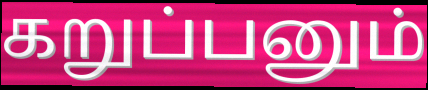
கறுப்பனும்